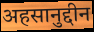
अहसानुद्दीन